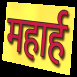
महार्ह